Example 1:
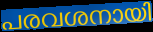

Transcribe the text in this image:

പരവശനായി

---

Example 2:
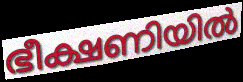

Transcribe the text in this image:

ഭീക്ഷണിയിൽ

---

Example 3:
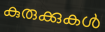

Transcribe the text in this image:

കുരുക്കുകൾ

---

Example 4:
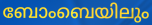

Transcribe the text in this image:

ബോംബെയിലും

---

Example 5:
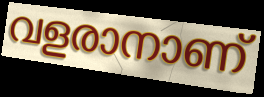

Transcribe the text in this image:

വളരാനാണ്